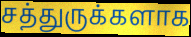
சத்துருக்களாக